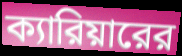
ক্যারিয়ারের